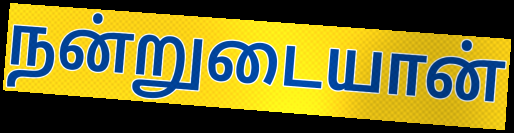
நன்றுடையான்